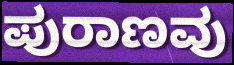
ಪುರಾಣವು